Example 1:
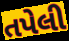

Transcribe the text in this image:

તપેલી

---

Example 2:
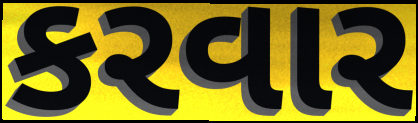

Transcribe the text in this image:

કરવાર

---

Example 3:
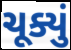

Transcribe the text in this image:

ચૂક્યું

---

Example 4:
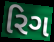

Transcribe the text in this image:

રિગ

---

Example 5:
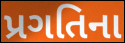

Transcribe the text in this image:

પ્રગતિના